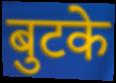
बुटके